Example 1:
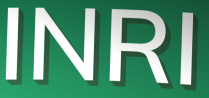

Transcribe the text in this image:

INRI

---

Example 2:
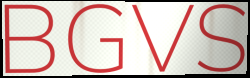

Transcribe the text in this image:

BGVS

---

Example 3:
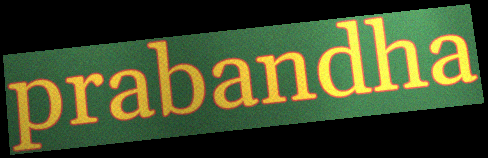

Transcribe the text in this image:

prabandha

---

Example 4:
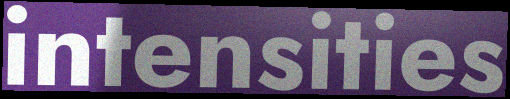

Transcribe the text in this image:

intensities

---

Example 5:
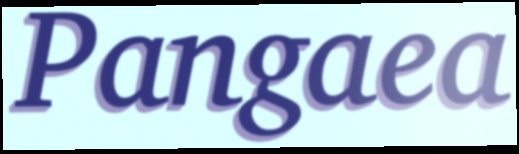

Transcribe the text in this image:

Pangaea